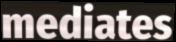
mediates